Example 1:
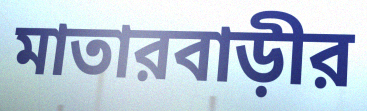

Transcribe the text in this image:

মাতারবাড়ীর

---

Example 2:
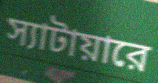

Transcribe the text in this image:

স্যাটায়ারে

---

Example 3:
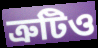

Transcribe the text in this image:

ত্রুটিও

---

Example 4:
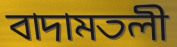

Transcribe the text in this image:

বাদামতলী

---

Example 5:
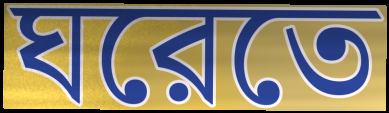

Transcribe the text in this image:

ঘরেতে